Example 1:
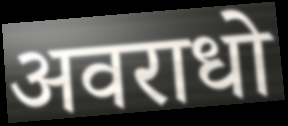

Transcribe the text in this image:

अवराधो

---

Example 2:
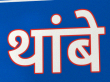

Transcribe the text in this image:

थांबे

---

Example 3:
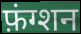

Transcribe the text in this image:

फ़ंग्शन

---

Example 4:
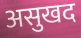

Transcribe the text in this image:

असुखद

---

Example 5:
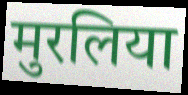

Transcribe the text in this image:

मुरलिया